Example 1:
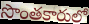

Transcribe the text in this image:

సొంతకారులో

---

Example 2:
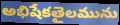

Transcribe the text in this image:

అభిషేకతైలమును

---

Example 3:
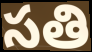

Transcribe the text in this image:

సతి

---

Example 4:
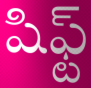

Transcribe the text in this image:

షిఫ్ట్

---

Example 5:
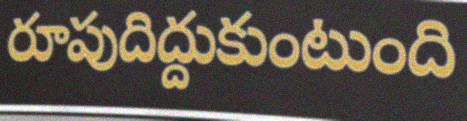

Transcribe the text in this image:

రూపుదిద్దుకుంటుంది